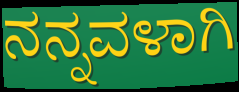
ನನ್ನವಳಾಗಿ